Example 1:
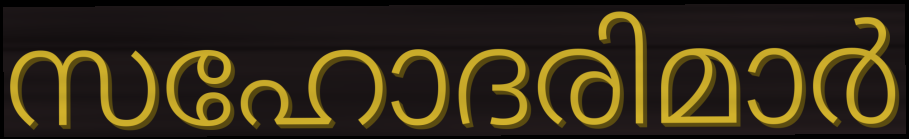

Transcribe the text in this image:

സഹോദരിമാർ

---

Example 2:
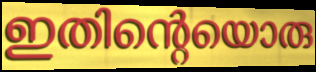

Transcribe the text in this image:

ഇതിന്റെയൊരു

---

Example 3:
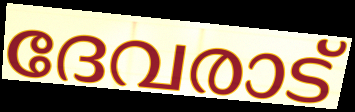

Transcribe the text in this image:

ദേവരാട്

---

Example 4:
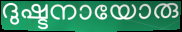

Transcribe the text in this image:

ദുഷ്ടനായോരു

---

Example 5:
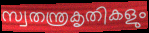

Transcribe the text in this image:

സ്വതന്ത്രകൃതികളും